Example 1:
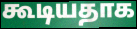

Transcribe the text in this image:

கூடியதாக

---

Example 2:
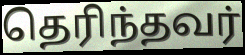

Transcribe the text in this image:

தெரிந்தவர்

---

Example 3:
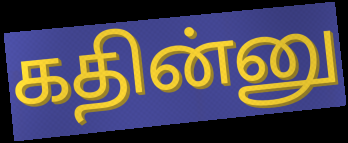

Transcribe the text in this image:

கதின்னு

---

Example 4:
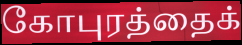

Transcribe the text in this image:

கோபுரத்தைக்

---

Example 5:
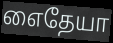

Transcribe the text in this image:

எைதேயா